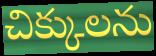
చిక్కులను